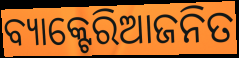
ବ୍ୟାକ୍ଟେରିଆଜନିତ